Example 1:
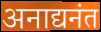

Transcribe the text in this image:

अनाद्यनंत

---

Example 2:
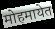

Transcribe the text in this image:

मोहमायेत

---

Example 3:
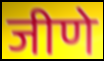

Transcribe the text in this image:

जीणे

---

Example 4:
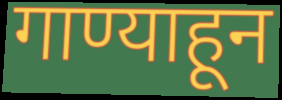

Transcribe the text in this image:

गाण्याहून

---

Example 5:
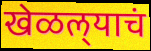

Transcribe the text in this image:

खेळल्याचं